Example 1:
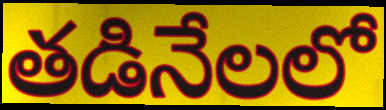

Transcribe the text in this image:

తడినేలలో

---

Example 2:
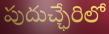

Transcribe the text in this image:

పుదుచ్ఛేరిలో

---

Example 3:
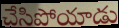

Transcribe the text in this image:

చేసిపోయాడు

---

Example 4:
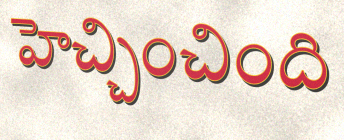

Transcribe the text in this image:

హెచ్చించింది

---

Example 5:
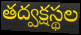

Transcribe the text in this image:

తద్వక్షస్థల